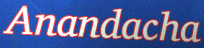
Anandacha